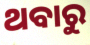
ଥବାରୁ